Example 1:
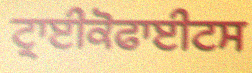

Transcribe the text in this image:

ਟ੍ਰਾਈਕੋਫਾਈਟਸ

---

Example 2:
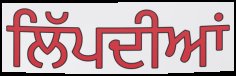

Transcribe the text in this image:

ਲਿੱਪਦੀਆਂ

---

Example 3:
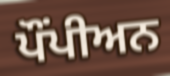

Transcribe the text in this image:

ਪੌਂਪੀਅਨ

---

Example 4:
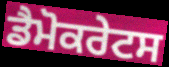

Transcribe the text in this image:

ਡੈਮੋਕਰੇਟਸ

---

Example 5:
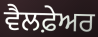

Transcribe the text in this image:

ਵੈਲਫ਼ੇਅਰ